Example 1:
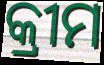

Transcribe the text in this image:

କ୍ରୀମ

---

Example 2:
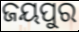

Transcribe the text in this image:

ଜୟପୁର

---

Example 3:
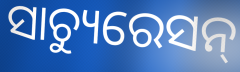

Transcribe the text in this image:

ସାଚ୍ୟୁରେସନ୍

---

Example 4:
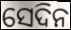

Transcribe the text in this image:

ସେଦିନ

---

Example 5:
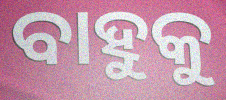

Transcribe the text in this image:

ବାହୁକୁ